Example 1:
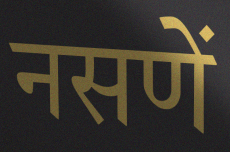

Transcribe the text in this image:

नसणें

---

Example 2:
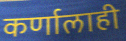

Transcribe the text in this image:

कर्णालाही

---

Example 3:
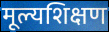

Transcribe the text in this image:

मूल्यशिक्षण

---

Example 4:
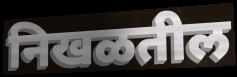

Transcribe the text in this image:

निखळतील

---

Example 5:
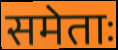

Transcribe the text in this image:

समेताः